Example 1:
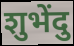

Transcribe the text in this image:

शुभेंदु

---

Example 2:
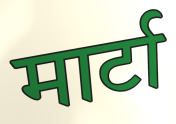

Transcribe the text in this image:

मार्टा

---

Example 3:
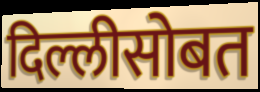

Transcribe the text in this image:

दिल्लीसोबत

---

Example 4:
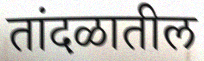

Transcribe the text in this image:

तांदळातील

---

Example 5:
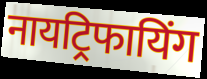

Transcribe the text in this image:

नायट्रिफायिंग